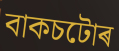
বাকচটোৰ